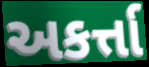
અકર્ત્તા